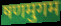
षणमुगम